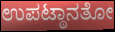
ಉಪಟ್ಠಾನತೋ